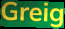
Greig